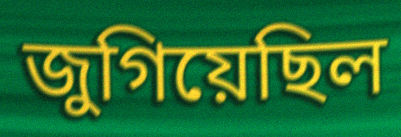
জুগিয়েছিল